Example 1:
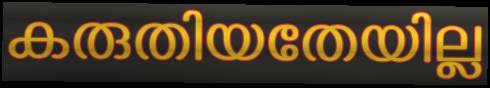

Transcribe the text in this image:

കരുതിയതേയില്ല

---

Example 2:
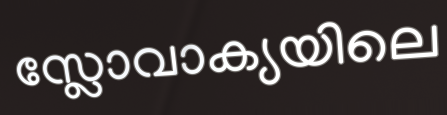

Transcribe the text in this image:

സ്ലോവാക്യയിലെ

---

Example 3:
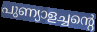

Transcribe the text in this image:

പുണ്യാളച്ചന്റെ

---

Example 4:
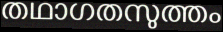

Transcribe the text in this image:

തഥാഗതസുത്തം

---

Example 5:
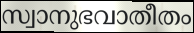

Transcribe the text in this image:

സ്വാനുഭവാതീതം